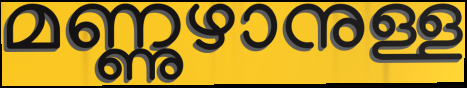
മണ്ണുഴാനുള്ള